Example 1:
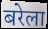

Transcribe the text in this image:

बरेला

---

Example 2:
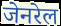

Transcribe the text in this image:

जेनरेल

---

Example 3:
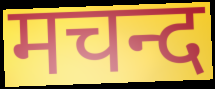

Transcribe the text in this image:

मचन्द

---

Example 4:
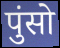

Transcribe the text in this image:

पुंसो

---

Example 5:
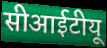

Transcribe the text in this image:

सीआईटीयू